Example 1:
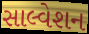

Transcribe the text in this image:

સાલ્વેશન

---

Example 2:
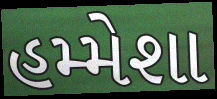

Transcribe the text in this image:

હમ્મેશા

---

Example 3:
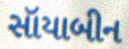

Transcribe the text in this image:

સૉયાબીન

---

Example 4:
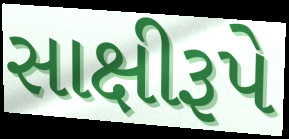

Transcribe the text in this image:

સાક્ષીરૂપે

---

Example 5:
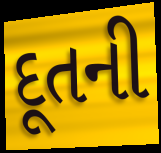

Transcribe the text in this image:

દૂતની